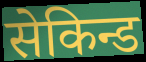
सेकिन्ड